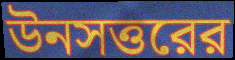
উনসত্তরের